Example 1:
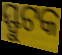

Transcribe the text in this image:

ସ୍ଫୁଟକ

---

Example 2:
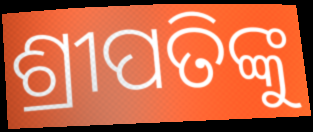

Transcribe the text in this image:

ଶ୍ରୀପତିଙ୍କୁ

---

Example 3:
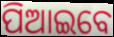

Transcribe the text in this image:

ପିଆଇବେ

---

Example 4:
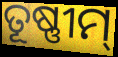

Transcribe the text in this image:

ତୂଷ୍ଣୀମ୍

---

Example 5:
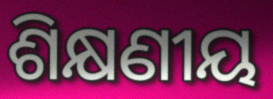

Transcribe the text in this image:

ଶିକ୍ଷଣୀୟ